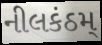
નીલકંઠમ્